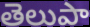
తెలుపా